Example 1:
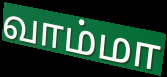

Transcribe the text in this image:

வாம்மா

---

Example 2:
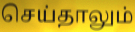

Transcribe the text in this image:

செய்தாலும்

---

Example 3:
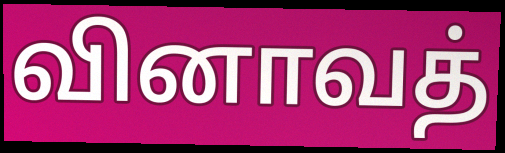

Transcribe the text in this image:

வினாவத்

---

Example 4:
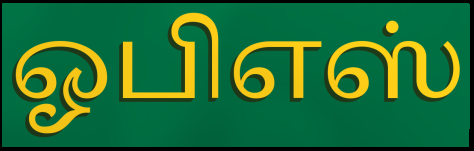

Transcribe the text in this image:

ஓபிஎஸ்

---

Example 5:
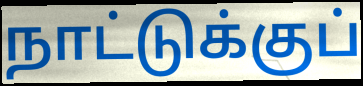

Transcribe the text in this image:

நாட்டுக்குப்